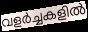
വളർച്ചകളിൽ